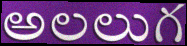
అలలుగ